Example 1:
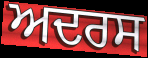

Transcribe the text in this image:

ਅਦਰਸ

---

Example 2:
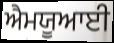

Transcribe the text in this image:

ਐਮਯੂਆਈ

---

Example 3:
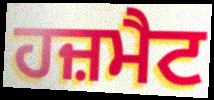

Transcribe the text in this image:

ਹਜ਼ਮੈਟ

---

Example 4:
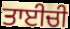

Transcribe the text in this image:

ਤਾਈਚੀ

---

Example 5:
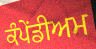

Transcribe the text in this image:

ਕੰਪੇਂਡੀਅਮ